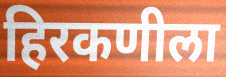
हिरकणीला